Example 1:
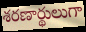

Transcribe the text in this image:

శరణార్థులుగా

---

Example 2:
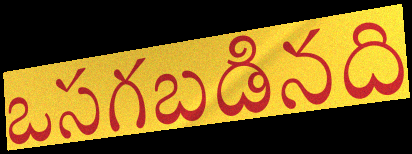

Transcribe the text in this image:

ఒసగబడినది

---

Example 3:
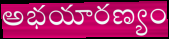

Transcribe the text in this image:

అభయారణ్యం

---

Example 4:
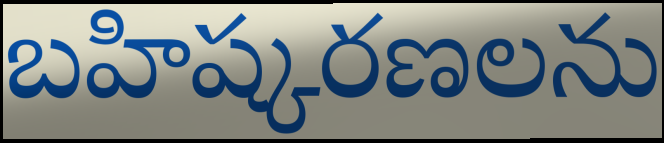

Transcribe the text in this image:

బహిష్కరణలను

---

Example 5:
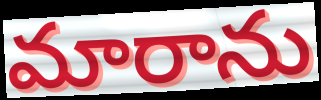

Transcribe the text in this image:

మారాను